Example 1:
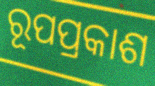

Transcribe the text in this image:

ରୂପପ୍ରକାଶ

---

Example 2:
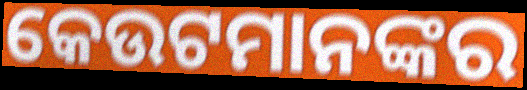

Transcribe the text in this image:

କେଉଟମାନଙ୍କର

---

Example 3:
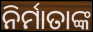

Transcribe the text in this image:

ନିର୍ମାତାଙ୍କ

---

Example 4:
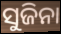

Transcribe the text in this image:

ସୁଜିନା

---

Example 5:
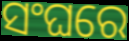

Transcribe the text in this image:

ସଂଘରେ